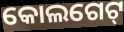
କୋଲଗେଟ୍